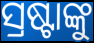
ସ୍ରଷ୍ଟାଙ୍କୁ